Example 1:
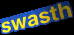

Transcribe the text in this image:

swasth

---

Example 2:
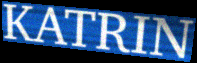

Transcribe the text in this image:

KATRIN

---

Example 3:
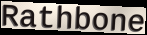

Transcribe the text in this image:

Rathbone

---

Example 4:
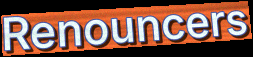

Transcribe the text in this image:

Renouncers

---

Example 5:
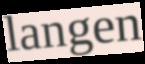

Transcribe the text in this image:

langen